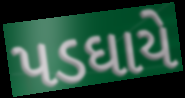
પડઘાયે